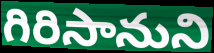
గిరిసానుని